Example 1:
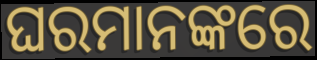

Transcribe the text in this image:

ଘରମାନଙ୍କରେ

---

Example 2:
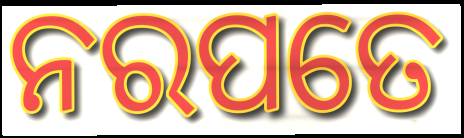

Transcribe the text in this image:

ନରପତେ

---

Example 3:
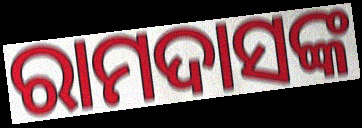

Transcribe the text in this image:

ରାମଦାସଙ୍କ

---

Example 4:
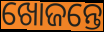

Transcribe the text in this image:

ଖୋଜନ୍ତେ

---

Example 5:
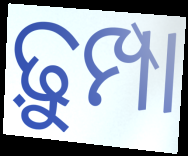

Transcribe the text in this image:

ଢ଼ୁମ୍ପା